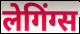
लेगिंग्स